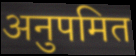
अनुपमित